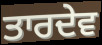
ਤਾਰਦੇਵ